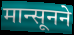
मान्सूनने